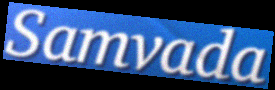
Samvada